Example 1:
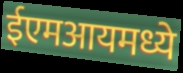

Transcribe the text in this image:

ईएमआयमध्ये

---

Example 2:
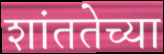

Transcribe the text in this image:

शांततेच्या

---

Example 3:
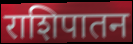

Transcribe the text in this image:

राशिपातन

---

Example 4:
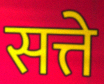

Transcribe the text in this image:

सत्ते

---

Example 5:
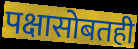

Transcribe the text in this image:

पक्षासोबतही